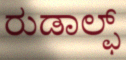
ರುಡಾಲ್ಫ್